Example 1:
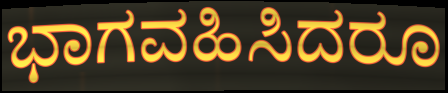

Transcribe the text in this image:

ಭಾಗವಹಿಸಿದರೂ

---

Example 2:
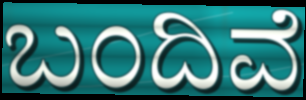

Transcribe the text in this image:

ಬಂದಿವೆ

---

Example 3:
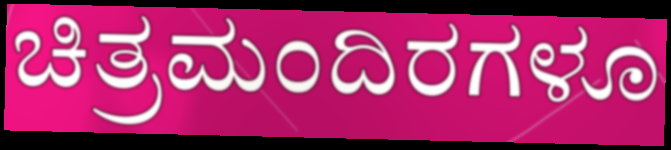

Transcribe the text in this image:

ಚಿತ್ರಮಂದಿರಗಳೂ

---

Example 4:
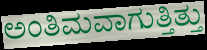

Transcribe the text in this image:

ಅಂತಿಮವಾಗುತ್ತಿತ್ತು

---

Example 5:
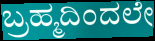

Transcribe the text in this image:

ಬ್ರಹ್ಮದಿಂದಲೇ